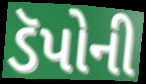
ડૅપોની